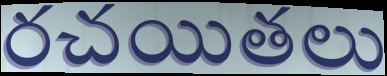
రచయితలు